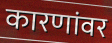
कारणांवर